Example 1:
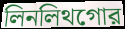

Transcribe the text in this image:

লিনলিথগোর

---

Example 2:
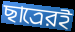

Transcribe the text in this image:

ছাত্রেরই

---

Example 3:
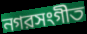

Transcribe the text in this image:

নগরসংগীত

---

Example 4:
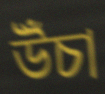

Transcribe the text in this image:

উঁচা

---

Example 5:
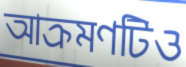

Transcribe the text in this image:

আক্রমণটিও